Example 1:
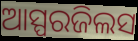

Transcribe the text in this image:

ଆସ୍ପରଜିଲସ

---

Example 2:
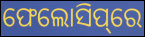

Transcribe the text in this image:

ଫେଲୋସିପ୍‌ରେ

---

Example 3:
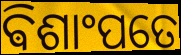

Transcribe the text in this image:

ଵିଶାଂପତେ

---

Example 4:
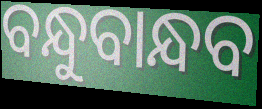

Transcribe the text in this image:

ବନ୍ଧୁବାନ୍ଧବ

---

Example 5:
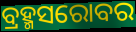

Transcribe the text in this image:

ବ୍ରହ୍ମସରୋବର